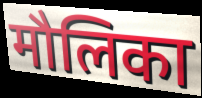
मौलिका